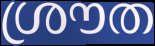
ശ്രൗത